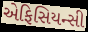
એફિસિયન્સી